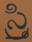
స్ర్తి